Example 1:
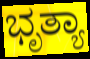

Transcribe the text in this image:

ಭೃತ್ಯಾ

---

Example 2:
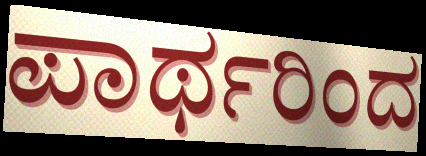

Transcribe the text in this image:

ಪಾರ್ಥರಿಂದ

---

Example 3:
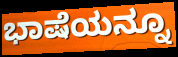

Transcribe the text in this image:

ಭಾಷೆಯನ್ನೂ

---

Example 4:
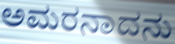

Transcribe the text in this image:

ಅಮರನಾದನು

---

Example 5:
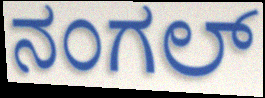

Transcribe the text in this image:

ನಂಗಲ್